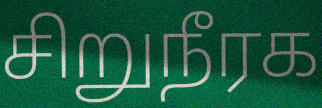
சிறுநீரக